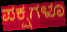
ಪಕ್ಷಗಳೂ